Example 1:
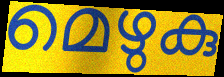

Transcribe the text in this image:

മെഴുകു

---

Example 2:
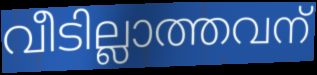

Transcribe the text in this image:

വീടില്ലാത്തവന്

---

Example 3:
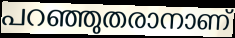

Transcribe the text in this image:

പറഞ്ഞുതരാനാണ്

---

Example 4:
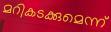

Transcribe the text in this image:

മറികടക്കുമെന്ന്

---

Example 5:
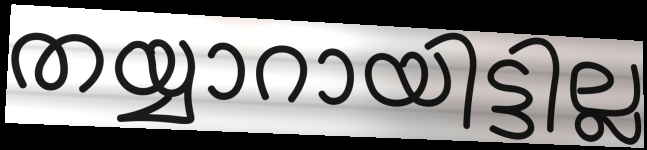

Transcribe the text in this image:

തയ്യാറായിട്ടില്ല